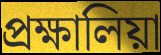
প্রক্ষালিয়া